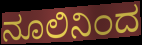
ನೂಲಿನಿಂದ